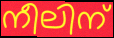
നീലിന്